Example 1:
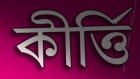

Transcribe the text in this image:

কীর্ত্তি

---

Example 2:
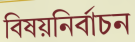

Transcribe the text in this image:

বিষয়নির্বাচন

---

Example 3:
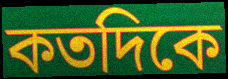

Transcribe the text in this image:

কতদিকে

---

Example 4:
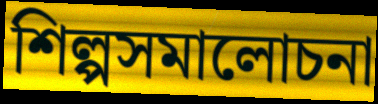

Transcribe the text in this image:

শিল্পসমালোচনা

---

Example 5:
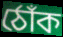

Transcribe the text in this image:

ঠোঁক